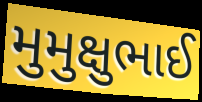
મુમુક્ષુભાઈ